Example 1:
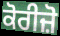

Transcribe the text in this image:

ਕੋਰੀਜ਼ੋ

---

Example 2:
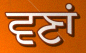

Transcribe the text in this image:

ਵਣਾਂ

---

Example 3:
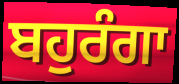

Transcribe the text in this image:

ਬਹੁਰੰਗਾ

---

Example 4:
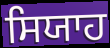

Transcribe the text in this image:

ਸਿਯਾਹ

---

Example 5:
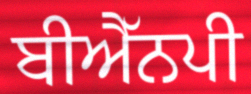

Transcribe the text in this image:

ਬੀਐੱਨਪੀ